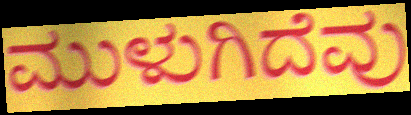
ಮುಳುಗಿದೆವು